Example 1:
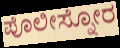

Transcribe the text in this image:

ಪೊಲೀಸ್ನೋರ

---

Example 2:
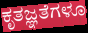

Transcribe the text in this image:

ಕೃತಜ್ಞತೆಗಳೂ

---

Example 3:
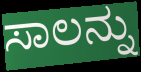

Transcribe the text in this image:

ಸಾಲನ್ನು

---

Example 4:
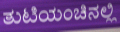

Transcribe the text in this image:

ತುಟಿಯಂಚಿನಲ್ಲಿ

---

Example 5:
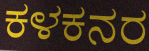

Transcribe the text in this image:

ಕಳಕನರ